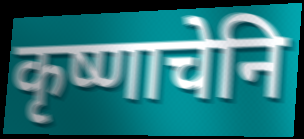
कृष्णाचेनि